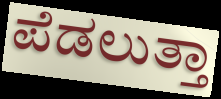
ಪೆಡಲುತ್ತಾ